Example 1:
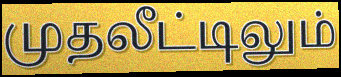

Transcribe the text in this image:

முதலீட்டிலும்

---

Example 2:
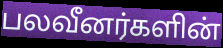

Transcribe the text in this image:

பலவீனர்களின்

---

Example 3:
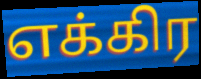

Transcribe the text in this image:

எக்கிர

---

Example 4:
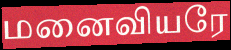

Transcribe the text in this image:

மனைவியரே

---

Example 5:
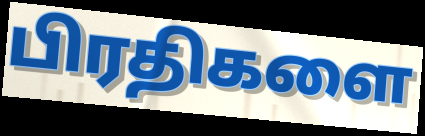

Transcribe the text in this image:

பிரதிகளை